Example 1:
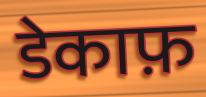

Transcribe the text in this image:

डेकाफ़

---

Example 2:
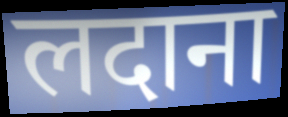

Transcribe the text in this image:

लदाना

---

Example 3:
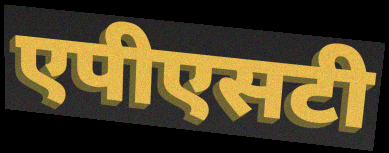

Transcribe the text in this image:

एपीएसटी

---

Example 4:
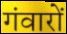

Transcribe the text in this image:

गंवारों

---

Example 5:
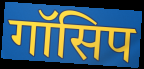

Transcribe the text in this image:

गॉसिप